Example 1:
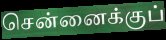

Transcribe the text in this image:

சென்னைக்குப்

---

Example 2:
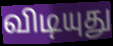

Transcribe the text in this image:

விடியுது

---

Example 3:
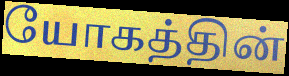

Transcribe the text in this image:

யோகத்தின்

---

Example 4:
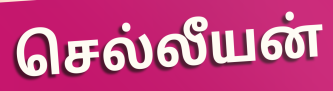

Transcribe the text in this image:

செல்லீயன்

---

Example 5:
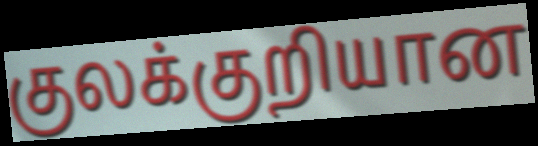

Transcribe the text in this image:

குலக்குறியான